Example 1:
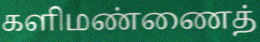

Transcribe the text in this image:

களிமண்ணைத்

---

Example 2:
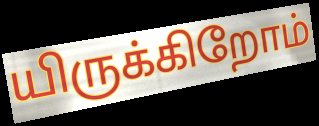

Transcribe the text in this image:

யிருக்கிறோம்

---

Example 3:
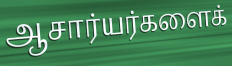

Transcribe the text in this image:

ஆசார்யர்களைக்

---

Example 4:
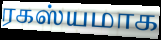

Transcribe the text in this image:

ரகஸ்யமாக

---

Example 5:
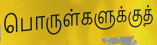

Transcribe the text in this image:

பொருள்களுக்குத்